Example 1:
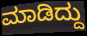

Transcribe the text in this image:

ಮಾಡಿದ್ದು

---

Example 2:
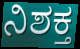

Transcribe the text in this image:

ನಿಶಕ್ತ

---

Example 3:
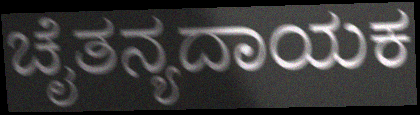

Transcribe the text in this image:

ಚೈತನ್ಯದಾಯಕ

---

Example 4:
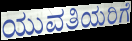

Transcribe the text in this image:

ಯುವತಿಯರಿಗೆ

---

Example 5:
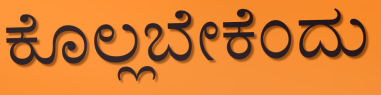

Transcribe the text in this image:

ಕೊಲ್ಲಬೇಕೆಂದು